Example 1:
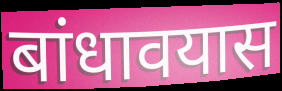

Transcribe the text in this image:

बांधावयास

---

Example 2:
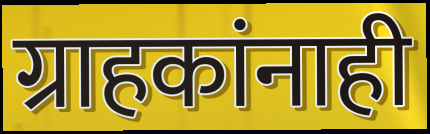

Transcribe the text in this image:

ग्राहकांनाही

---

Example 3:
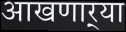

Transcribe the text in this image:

आखणार्या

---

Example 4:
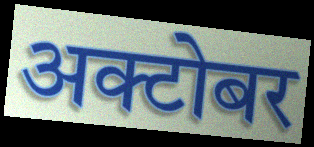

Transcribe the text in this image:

अक्टोबर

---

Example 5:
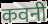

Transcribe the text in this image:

कवनी